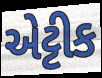
એટ્ટીક